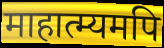
माहात्म्यमपि